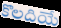
కొలదియే